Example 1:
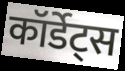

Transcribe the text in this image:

कॉर्डेट्स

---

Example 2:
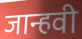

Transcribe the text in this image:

जान्‍हवी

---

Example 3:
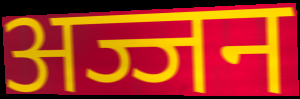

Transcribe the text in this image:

अज्जन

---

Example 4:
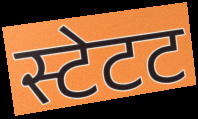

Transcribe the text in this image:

स्टेटट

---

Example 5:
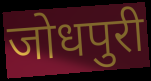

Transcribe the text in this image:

जोधपुरी